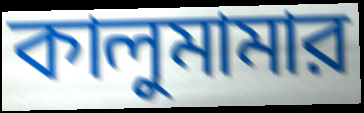
কালুমামার